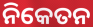
ନିକେତନ